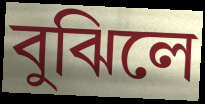
বুঝিলে